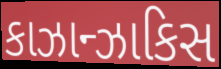
કાઝાન્ઝાકિસ